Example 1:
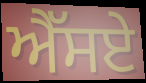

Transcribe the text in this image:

ਐੱਸਏ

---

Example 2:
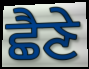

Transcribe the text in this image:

ਛੈਣੇ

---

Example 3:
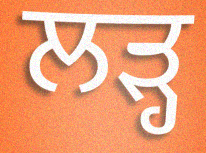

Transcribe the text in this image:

ਲੜ੍ਹ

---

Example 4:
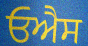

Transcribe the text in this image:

ਓਐਸ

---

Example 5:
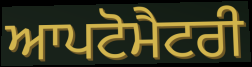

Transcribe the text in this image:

ਆਪਟੋਮੈਟਰੀ